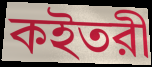
কইতরী